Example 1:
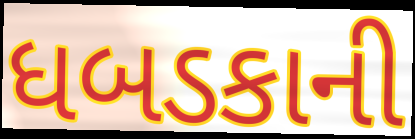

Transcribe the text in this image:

ધબડકાની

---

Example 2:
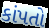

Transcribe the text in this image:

કાંપતો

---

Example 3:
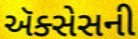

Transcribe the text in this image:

ઍક્સેસની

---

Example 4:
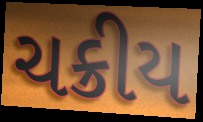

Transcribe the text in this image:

ચક્રીય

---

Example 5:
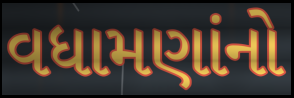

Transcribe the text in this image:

વધામણાંનો